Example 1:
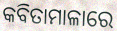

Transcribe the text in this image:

କବିତାମାଳାରେ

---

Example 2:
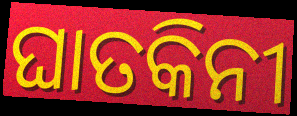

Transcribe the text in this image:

ଘାତକିନୀ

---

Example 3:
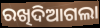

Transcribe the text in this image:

ରଖିଦିଆଗଲା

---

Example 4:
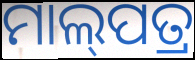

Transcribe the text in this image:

ମାଲ୍‌ପତ୍ର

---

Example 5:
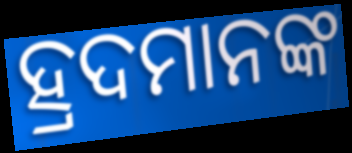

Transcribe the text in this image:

ହ୍ରଦମାନଙ୍କ